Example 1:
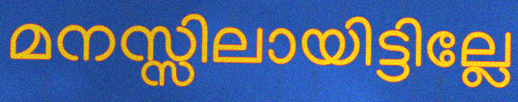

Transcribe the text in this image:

മനസ്സിലായിട്ടില്ലേ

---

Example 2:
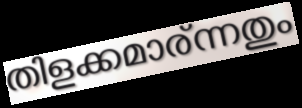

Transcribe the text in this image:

തിളക്കമാര്ന്നതും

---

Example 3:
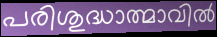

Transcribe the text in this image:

പരിശുദ്ധാത്മാവിൽ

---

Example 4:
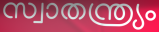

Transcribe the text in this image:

സ്വാതന്ത്ര്യം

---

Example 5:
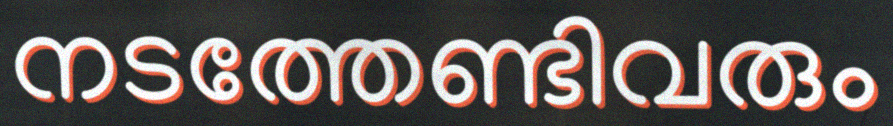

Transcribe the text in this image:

നടത്തേണ്ടിവരും